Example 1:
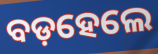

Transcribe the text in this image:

ବଡ଼ହେଲେ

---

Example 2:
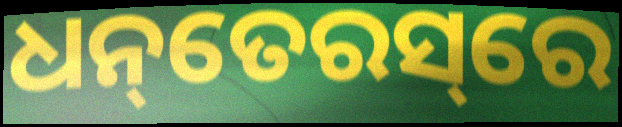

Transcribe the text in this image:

ଧନ୍‌ତେରସ୍‌ରେ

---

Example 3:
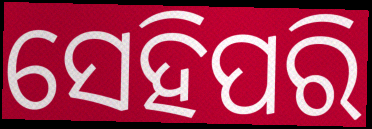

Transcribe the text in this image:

ସେହିପରି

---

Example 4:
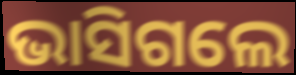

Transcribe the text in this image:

ଭାସିଗଲେ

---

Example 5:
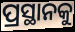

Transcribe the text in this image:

ପ୍ରସ୍ଥାନକୁ